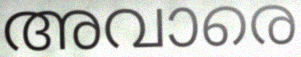
അവാരെ